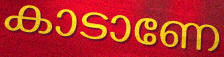
കാടാണേ